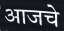
आजचे